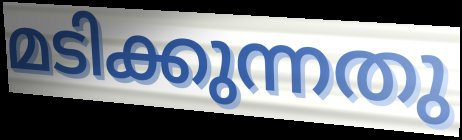
മടിക്കുന്നതു